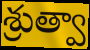
శ్రుత్వా